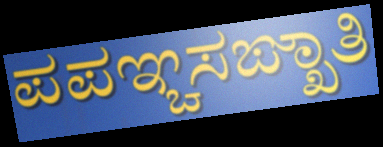
ಪಪಞ್ಚಸಙ್ಖಾತಿ